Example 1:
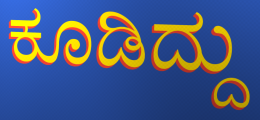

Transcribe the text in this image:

ಕೂಡಿದ್ದು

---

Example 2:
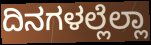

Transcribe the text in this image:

ದಿನಗಳಲ್ಲೆಲ್ಲಾ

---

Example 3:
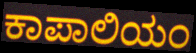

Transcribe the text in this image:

ಕಾಪಾಲಿಯಂ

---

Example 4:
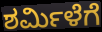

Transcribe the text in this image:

ಶರ್ಮಿಳೆಗೆ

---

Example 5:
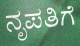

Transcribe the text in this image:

ನೃಪತಿಗೆ